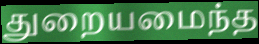
துறையமைந்த